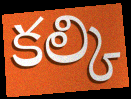
కల్కి